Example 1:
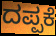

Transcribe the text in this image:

ದಪ್ಪಕೆ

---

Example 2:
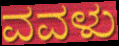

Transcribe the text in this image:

ವವಳು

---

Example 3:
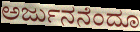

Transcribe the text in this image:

ಅರ್ಜುನನೆಂದೂ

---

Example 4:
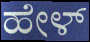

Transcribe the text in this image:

ಹೇಳ್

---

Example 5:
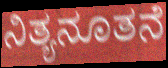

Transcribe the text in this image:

ನಿತ್ಯನೂತನೆ